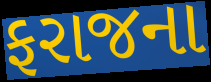
ફરાજના